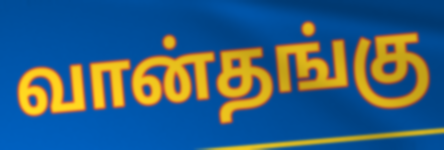
வான்தங்கு